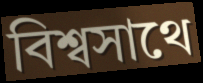
বিশ্বসাথে